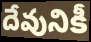
దేవునికీ